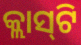
କ୍ଲାସ୍‌ଟି